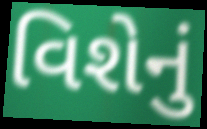
વિશેનું